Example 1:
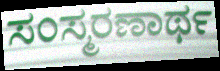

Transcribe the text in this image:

ಸಂಸ್ಮರಣಾರ್ಥ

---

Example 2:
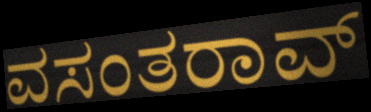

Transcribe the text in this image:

ವಸಂತರಾವ್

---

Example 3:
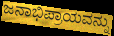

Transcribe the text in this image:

ಜನಾಭಿಪ್ರಾಯವನ್ನು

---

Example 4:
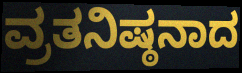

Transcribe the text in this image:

ವ್ರತನಿಷ್ಠನಾದ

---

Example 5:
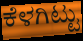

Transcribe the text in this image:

ಕೆಳಗಿಟ್ಟು